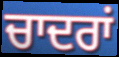
ਚਾਦਰਾਂ